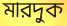
মারদুক